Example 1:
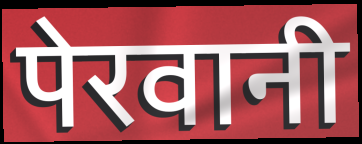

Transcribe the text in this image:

पेरवानी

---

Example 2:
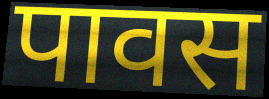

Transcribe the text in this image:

पावस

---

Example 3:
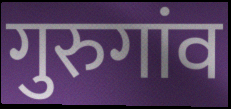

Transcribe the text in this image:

गुरुगांव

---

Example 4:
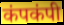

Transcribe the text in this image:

कंपकंपी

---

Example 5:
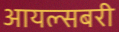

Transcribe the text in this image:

आयल्सबरी